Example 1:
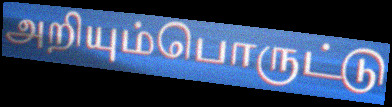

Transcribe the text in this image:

அறியும்பொருட்டு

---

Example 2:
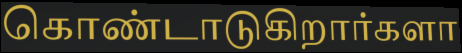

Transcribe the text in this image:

கொண்டாடுகிறார்களா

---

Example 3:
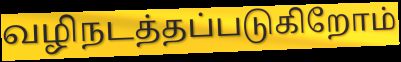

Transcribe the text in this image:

வழிநடத்தப்படுகிறோம்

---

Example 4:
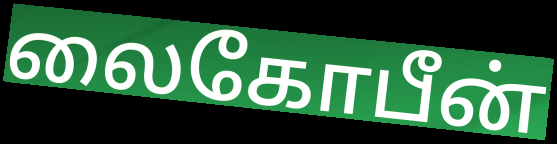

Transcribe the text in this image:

லைகோபீன்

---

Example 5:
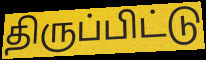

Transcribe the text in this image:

திருப்பிட்டு